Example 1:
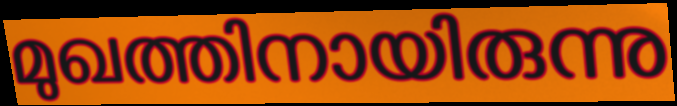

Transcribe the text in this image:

മുഖത്തിനായിരുന്നു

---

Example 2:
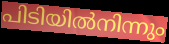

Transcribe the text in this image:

പിടിയിൽനിന്നും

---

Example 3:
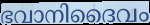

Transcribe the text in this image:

ഭവാനിദൈവം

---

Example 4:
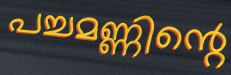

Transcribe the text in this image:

പച്ചമണ്ണിന്റെ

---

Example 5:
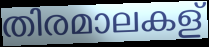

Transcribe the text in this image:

തിരമാലകള്